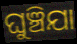
ଘୁଞ୍ଚିଯା